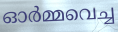
ഓർമ്മവെച്ച